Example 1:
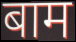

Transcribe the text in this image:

बाम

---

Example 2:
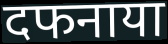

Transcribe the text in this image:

दफनाया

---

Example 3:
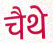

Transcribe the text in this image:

चैथे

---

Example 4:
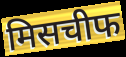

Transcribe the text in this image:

मिसचीफ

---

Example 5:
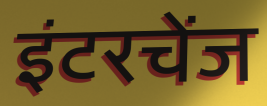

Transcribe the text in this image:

इंटरचेंज